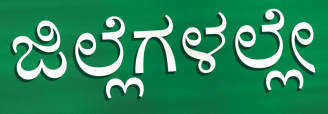
ಜಿಲ್ಲೆಗಳಲ್ಲೇ